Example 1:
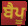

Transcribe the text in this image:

ਬੈਪੂ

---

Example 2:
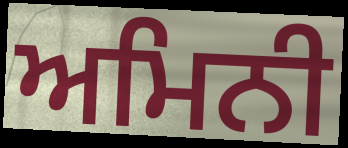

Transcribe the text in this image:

ਅਮਿਨੀ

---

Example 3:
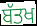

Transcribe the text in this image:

ਬੱਤਖ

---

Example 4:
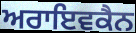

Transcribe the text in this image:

ਅਰਾਇਵਕੈਨ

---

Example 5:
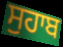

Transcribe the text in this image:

ਸੁਹਾਬ